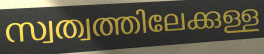
സ്വത്വത്തിലേക്കുള്ള